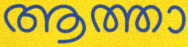
ആത്താ